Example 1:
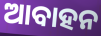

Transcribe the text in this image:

ଆବାହନ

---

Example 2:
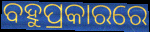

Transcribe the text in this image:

ବହୁପ୍ରକାରରେ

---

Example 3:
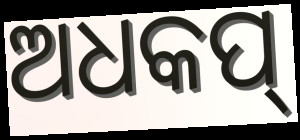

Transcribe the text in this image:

ଅଧକପ୍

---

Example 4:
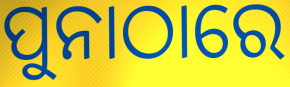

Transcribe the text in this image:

ପୁନାଠାରେ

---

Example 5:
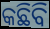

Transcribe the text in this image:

କଛିବି